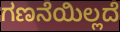
ಗಣನೆಯಿಲ್ಲದೆ